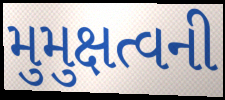
મુમુક્ષત્વની